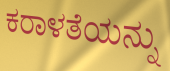
ಕರಾಳತೆಯನ್ನು